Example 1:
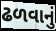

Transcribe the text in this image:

ઢળવાનું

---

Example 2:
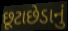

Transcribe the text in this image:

છૂટાછેડાનું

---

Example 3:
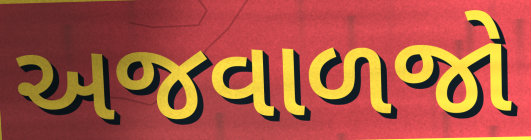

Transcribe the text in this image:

અજવાળજો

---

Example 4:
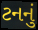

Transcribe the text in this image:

ટનનું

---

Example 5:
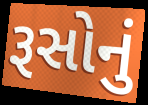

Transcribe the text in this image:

રૂસોનું